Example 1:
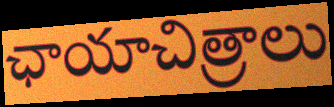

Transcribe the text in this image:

ఛాయాచిత్రాలు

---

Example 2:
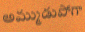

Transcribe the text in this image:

అమ్ముడుపోగా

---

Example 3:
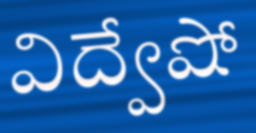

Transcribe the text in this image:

విద్వేషో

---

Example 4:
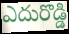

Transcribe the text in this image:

ఎదురొడ్డి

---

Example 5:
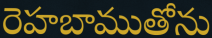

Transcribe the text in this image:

రెహబాముతోను